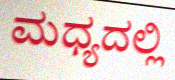
ಮಧ್ಯದಲ್ಲಿ